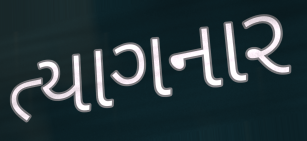
ત્યાગનાર